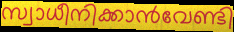
സ്വാധീനിക്കാൻവേണ്ടി